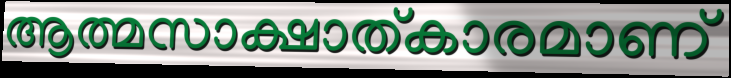
ആത്മസാക്ഷാത്കാരമാണ്